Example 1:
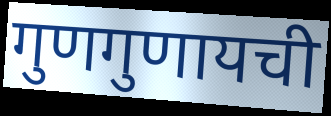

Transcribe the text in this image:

गुणगुणायची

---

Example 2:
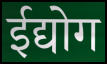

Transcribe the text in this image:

ईद्योग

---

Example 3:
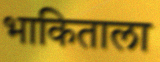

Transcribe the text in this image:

भाकिताला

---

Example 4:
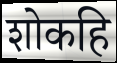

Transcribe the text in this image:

शोकहि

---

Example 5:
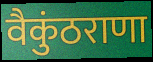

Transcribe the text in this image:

वैकुंठराणा